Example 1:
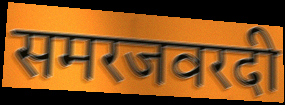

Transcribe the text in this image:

समरजवरदी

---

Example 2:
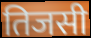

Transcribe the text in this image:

तिजसी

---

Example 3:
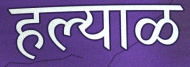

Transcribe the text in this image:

हल्याळ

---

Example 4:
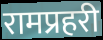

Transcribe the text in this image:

रामप्रहरी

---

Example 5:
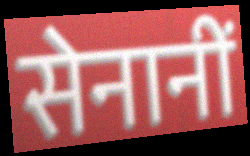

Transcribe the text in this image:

सेनानीं